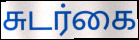
சுடர்கை